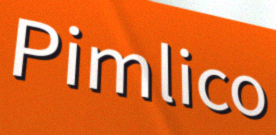
Pimlico